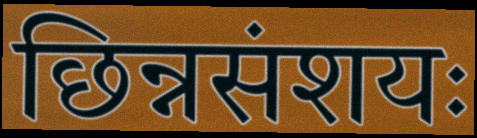
छिन्नसंशयः